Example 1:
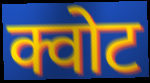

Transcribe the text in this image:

क्वोट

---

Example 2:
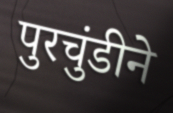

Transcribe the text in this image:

पुरचुंडीने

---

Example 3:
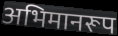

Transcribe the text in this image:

अभिमानरूप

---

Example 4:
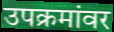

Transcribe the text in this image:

उपक्रमांवर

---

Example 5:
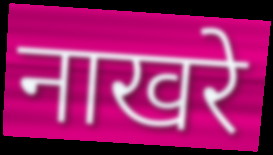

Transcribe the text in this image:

नाखरे